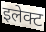
इलेक्ट